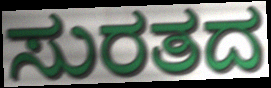
ಸುರತದ